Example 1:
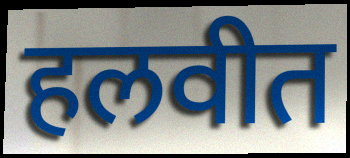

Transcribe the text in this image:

हलवीत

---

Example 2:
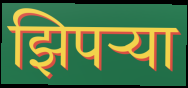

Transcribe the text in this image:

झिपऱ्या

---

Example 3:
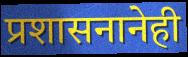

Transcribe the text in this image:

प्रशासनानेही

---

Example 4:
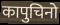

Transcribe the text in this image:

कापुचिनो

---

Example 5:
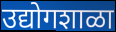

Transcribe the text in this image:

उद्योगशाळा